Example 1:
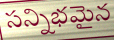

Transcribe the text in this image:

సన్నిభమైన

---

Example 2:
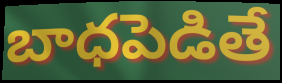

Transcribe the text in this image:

బాధపెడితే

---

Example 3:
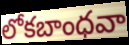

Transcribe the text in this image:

లోకబాంధవా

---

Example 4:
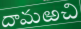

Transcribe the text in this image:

దామఱచి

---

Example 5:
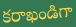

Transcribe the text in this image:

కరాఖండిగా